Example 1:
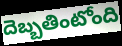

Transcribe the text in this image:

దెబ్బతింటోంది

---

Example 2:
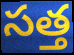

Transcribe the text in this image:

సత్త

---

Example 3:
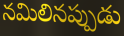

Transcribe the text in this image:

నమిలినప్పుడు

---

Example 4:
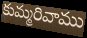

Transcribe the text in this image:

కుమ్మరివాము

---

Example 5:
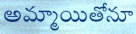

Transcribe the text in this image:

అమ్మాయితోనూ